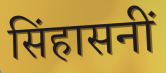
सिंहासनीं